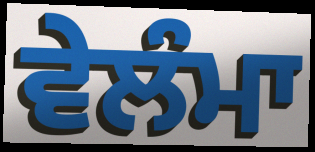
ਵੇਲੰਮਾ